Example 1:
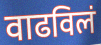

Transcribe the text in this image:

वाढविलं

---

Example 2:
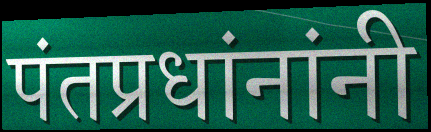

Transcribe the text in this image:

पंतप्रधांनांनी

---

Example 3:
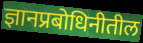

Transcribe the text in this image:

ज्ञानप्रबोधिनीतील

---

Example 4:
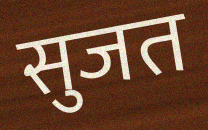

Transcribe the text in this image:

सुजत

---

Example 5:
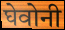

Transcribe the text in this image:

घेवोनी